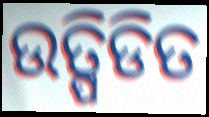
ଉତ୍ପିଡିତ